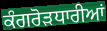
ਕੰਗਰੋੜਧਾਰੀਆਂ